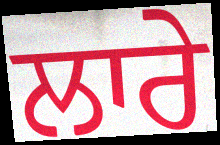
ਲਾਰੇ